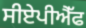
ਸੀਏਪੀਐੱਫ